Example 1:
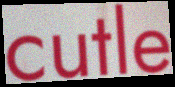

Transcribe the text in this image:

cutle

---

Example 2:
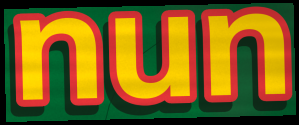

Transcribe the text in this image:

nun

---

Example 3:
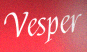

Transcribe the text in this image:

Vesper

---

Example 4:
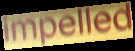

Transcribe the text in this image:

impelled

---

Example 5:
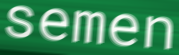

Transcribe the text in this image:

semen